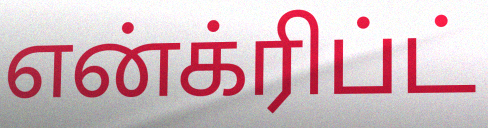
என்க்ரிப்ட்